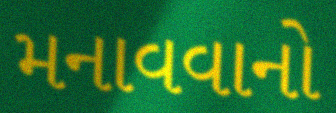
મનાવવાનો